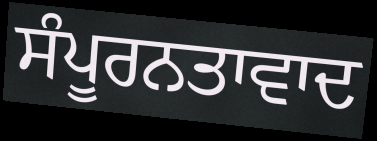
ਸੰਪੂਰਨਤਾਵਾਦ